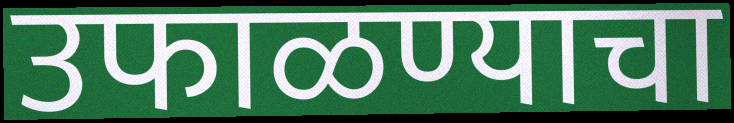
उफाळण्याचा